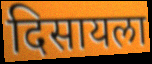
दिसायला